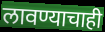
लावण्याचाही